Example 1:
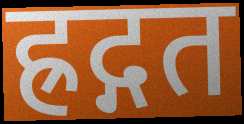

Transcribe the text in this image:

ह्रद्गत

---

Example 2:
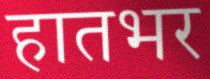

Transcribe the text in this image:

हातभर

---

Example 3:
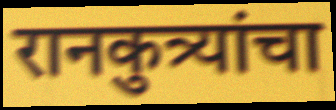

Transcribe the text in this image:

रानकुत्र्यांचा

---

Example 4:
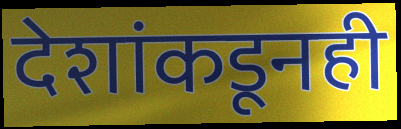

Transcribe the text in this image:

देशांकडूनही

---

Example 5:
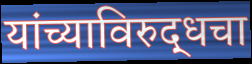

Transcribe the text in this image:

यांच्याविरुद्धचा